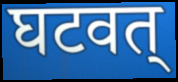
घटवत्